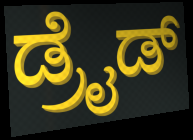
ಡ್ರೈಡ್